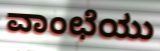
ವಾಂಛೆಯು